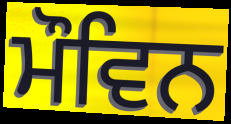
ਮੌਵਿਨ